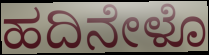
ಹದಿನೇಳೊ